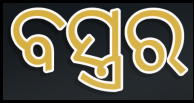
ବସ୍ତ୍ରର